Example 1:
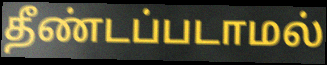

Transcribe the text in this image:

தீண்டப்படாமல்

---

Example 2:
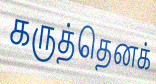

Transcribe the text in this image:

கருத்தெனக்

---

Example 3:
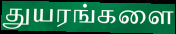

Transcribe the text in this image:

துயரங்களை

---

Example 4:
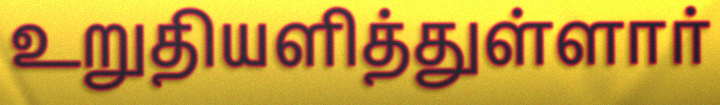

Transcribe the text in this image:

உறுதியளித்துள்ளார்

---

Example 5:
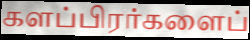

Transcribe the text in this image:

களப்பிரர்களைப்